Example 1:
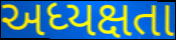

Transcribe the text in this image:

અધ્યક્ષતા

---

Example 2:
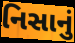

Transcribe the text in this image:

નિસાનું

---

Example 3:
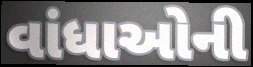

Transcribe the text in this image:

વાંધાઓની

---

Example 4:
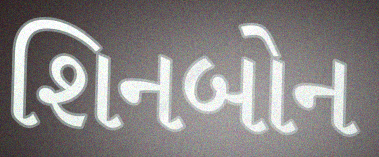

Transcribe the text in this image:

શિનબોન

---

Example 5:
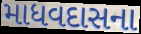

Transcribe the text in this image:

માધવદાસના